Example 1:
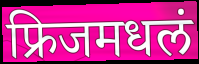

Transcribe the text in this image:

फ्रिजमधलं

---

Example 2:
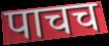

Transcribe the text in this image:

पाचच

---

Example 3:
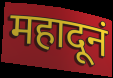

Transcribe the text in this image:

महादूनं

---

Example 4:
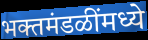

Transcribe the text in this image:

भक्तमंडळींमध्ये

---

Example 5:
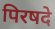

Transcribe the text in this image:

पिरषदे